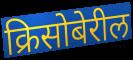
क्रिसोबेरील